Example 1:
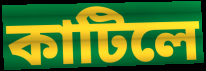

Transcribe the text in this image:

কাটিলে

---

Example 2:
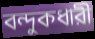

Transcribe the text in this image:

বন্দুকধারী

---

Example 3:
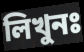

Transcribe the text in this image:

লিখুনঃ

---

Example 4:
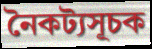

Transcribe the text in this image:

নৈকট্যসূচক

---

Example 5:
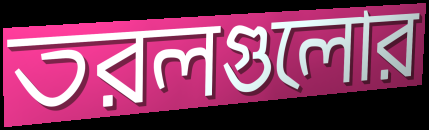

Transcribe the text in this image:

তরলগুলোর